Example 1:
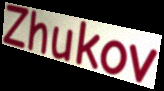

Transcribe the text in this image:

Zhukov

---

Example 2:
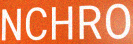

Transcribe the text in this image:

NCHRO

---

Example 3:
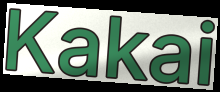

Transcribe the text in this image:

Kakai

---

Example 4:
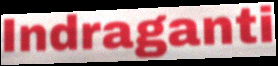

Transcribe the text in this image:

Indraganti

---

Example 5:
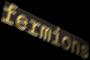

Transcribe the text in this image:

fermions